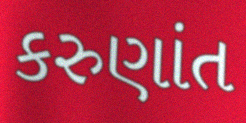
કરુણાંત